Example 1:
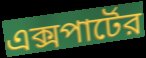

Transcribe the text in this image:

এক্সপার্টের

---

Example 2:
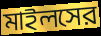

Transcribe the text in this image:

মাইলসের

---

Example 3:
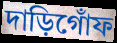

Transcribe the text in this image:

দাড়িগোঁফ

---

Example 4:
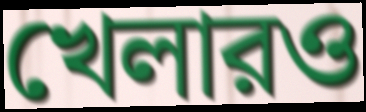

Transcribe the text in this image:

খেলারও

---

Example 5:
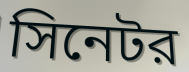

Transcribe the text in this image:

সিনেটর